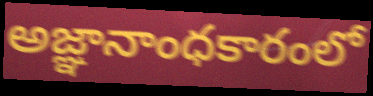
అజ్ఞానాంధకారంలో